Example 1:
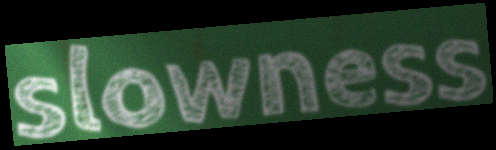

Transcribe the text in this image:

slowness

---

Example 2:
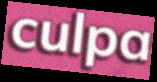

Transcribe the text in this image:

culpa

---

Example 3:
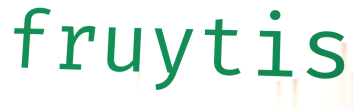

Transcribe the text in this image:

fruytis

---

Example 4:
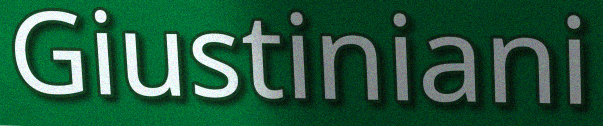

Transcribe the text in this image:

Giustiniani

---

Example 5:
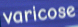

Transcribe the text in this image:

varicose